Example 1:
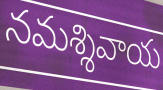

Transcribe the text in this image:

నమశ్శివాయ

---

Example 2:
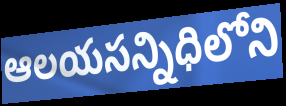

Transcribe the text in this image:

ఆలయసన్నిధిలోని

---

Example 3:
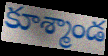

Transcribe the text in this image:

కూశ్మాండ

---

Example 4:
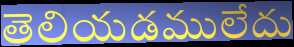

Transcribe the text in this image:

తెలియడములేదు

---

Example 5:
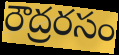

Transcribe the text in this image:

రౌద్రరసం